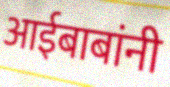
आईबाबांनी